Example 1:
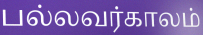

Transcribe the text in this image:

பல்லவர்காலம்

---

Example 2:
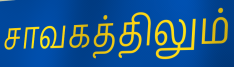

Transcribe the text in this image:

சாவகத்திலும்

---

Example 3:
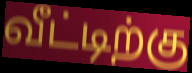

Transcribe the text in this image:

வீட்டிற்கு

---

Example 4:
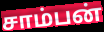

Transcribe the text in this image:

சாம்பன்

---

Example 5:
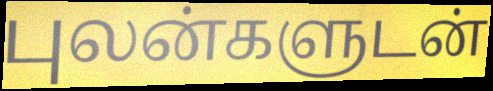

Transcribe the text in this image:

புலன்களுடன்